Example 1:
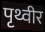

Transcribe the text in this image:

पृथ्वीर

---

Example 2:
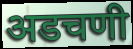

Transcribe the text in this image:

अडचणी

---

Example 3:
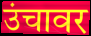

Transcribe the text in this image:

उंचावर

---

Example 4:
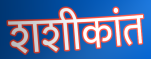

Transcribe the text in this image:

शशीकांत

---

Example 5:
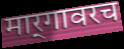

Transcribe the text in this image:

मार्गावरच